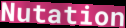
Nutation